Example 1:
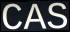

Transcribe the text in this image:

CAS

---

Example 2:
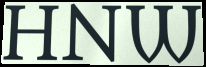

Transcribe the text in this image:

HNW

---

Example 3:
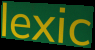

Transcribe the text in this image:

lexic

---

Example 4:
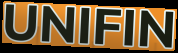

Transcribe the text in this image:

UNIFIN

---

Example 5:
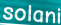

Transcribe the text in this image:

solani